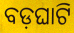
ବଡ଼ଘାଟି